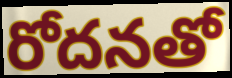
రోదనతో